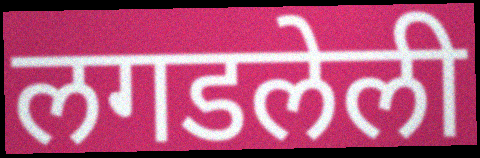
लगडलेली